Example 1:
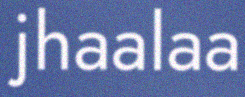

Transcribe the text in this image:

jhaalaa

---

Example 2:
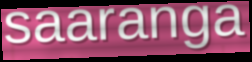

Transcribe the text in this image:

saaranga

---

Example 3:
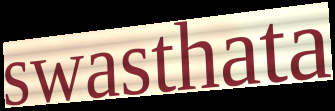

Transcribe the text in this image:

swasthata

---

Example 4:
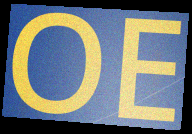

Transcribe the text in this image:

OE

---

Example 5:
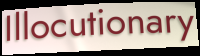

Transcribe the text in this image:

Illocutionary